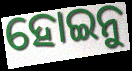
ହୋଇନୁ